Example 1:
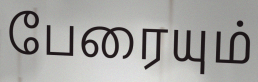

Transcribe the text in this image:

பேரையும்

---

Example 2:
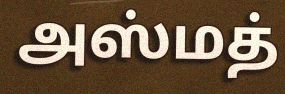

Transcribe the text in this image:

அஸ்மத்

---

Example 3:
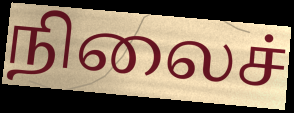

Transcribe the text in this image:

நிலைச்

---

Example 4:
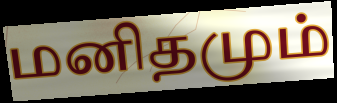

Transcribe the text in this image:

மனிதமும்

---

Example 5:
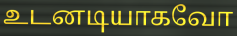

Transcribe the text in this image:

உடனடியாகவோ